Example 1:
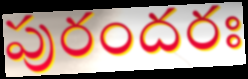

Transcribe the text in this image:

పురందరః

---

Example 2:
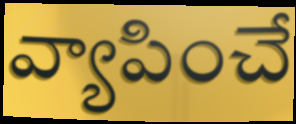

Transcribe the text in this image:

వ్యాపించే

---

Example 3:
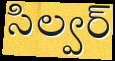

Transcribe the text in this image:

సిల్వర్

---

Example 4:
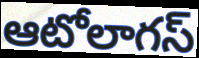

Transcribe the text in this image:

ఆటోలాగస్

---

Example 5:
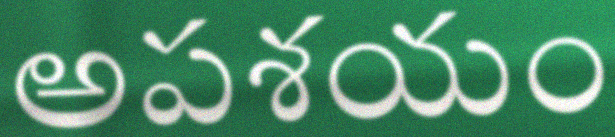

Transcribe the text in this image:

అపశయం